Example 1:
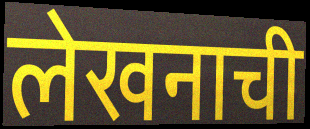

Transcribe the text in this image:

लेखनाची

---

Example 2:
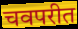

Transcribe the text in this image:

चवपरीत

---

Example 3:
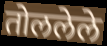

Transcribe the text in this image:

तोललेले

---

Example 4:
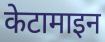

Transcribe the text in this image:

केटामाइन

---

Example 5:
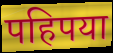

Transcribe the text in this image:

पहिपया